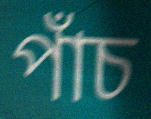
পাঁচ